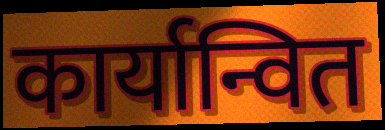
कार्यान्वित